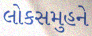
લોકસમુહને